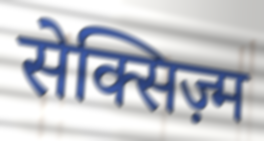
सेक्सिज़्म